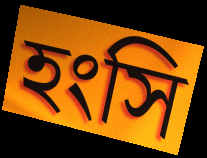
হংসি